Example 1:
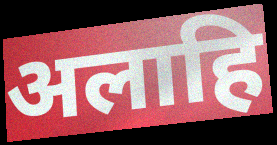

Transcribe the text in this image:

अलाहि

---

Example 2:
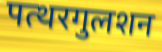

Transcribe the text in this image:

पत्थरगुलशन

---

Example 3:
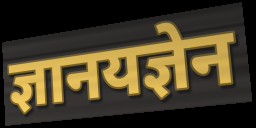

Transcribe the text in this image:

ज्ञानयज्ञेन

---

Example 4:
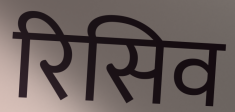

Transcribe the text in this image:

रिसिव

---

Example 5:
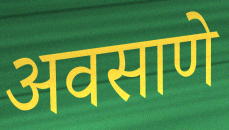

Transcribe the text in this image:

अवसाणे